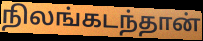
நிலங்கடந்தான்